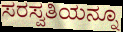
ಸರಸ್ವತಿಯನ್ನೂ